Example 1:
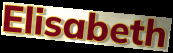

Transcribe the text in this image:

Elisabeth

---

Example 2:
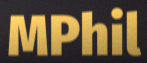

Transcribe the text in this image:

MPhil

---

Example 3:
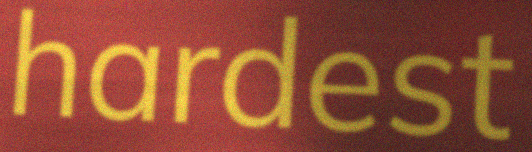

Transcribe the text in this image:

hardest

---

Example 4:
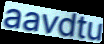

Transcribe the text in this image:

aavdtu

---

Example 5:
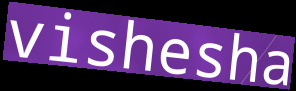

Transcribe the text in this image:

vishesha